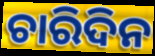
ଚାରିଦିନ